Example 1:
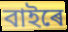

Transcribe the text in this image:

বাইৰে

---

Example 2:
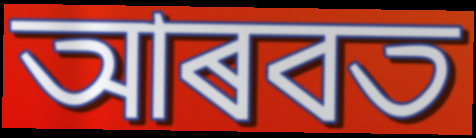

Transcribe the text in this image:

আৰবত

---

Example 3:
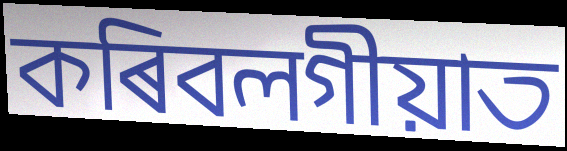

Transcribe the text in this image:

কৰিবলগীয়াত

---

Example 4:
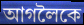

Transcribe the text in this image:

আগলৈকে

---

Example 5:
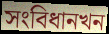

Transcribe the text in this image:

সংবিধানখন